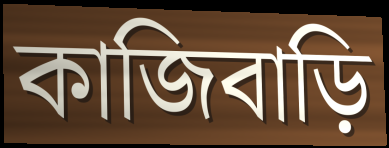
কাজিবাড়ি